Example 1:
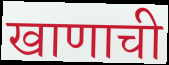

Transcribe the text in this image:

खाणाची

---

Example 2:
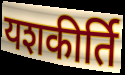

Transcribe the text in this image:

यशकीर्ति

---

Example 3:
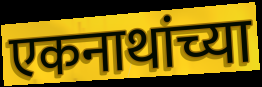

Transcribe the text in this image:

एकनाथांच्या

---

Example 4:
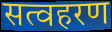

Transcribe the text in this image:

सत्वहरण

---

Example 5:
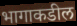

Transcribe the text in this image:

भागाकडील